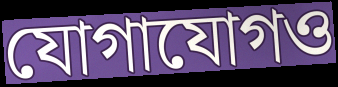
যোগাযোগও